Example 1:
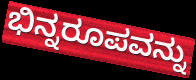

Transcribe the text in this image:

ಭಿನ್ನರೂಪವನ್ನು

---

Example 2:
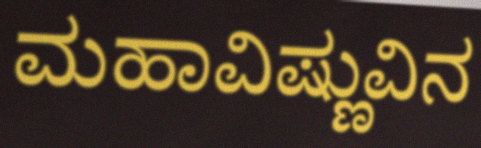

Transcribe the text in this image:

ಮಹಾವಿಷ್ಣುವಿನ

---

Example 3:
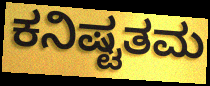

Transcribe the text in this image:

ಕನಿಷ್ಟತಮ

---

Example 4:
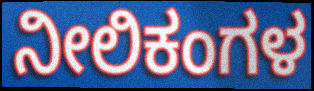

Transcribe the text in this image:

ನೀಲಿಕಂಗಳ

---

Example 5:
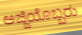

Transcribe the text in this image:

ಅಜ್ಜಿಯೊಬ್ಬರು